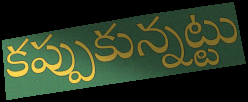
కప్పుకున్నట్టు